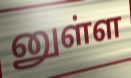
னுள்ள